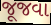
જૂજવા